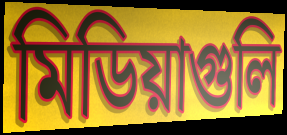
মিডিয়াগুলি